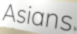
Asians